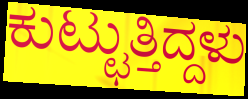
ಕುಟ್ಟುತ್ತಿದ್ದಳು